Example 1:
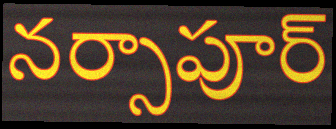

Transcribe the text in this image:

నర్సాపూర్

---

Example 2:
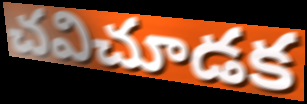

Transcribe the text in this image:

చవిచూడక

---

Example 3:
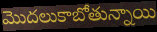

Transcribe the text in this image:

మొదలుకాబోతున్నాయి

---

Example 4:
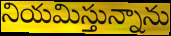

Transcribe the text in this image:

నియమిస్తున్నాను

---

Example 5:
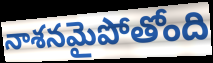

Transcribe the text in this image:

నాశనమైపోతోంది